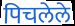
पिचलेले